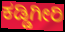
ಕಡ್ಡಿಗೀರಿ